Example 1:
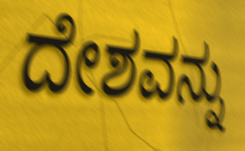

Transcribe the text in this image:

ದೇಶವನ್ನು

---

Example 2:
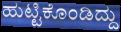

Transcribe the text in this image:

ಹುಟ್ಟಿಕೊಂಡಿದ್ದು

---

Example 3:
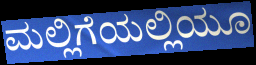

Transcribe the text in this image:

ಮಲ್ಲಿಗೆಯಲ್ಲಿಯೂ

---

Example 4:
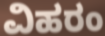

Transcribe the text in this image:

ವಿಹರಂ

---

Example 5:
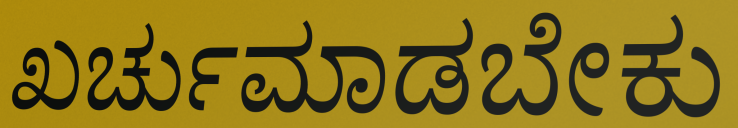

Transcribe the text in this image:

ಖರ್ಚುಮಾಡಬೇಕು